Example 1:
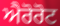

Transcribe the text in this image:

ਐਰੋਰੋਟ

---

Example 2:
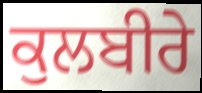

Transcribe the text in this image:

ਕੁਲਬੀਰੇ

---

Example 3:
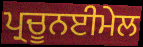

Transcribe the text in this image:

ਪ੍ਰਚੂਨਈਮੇਲ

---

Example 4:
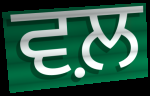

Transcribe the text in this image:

ਵਲ਼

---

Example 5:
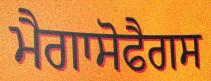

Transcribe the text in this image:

ਮੈਗਾਸੋਫੈਗਸ